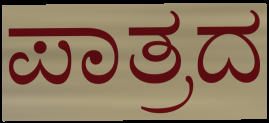
ಪಾತ್ರದ